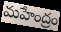
మహేంద్రం